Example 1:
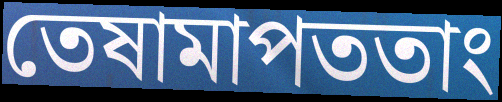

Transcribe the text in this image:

তেষামাপততাং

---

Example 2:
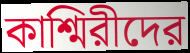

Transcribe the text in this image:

কাশ্মিরীদের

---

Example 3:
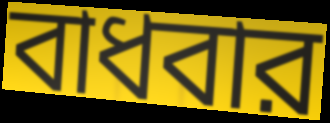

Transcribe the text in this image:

বাধবার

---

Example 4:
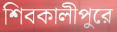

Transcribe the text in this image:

শিবকালীপুরে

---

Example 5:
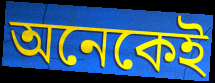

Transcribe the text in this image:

অনেকেই